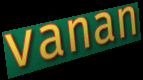
vanan